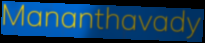
Mananthavady